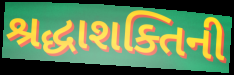
શ્રદ્ધાશક્તિની